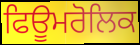
ਫਿਊਮਰੋਲਿਕ